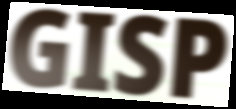
GISP